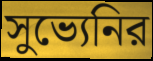
সুভ্যেনির